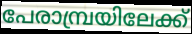
പേരാമ്പ്രയിലേക്ക്